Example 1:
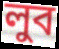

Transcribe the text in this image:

লুব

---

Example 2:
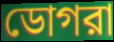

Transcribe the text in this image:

ডোগরা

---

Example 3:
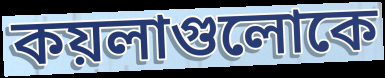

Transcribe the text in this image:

কয়লাগুলোকে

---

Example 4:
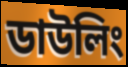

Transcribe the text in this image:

ডাউলিং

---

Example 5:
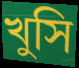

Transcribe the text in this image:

খুসি